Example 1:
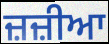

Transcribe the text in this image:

ਜ਼ਜ਼ੀਆ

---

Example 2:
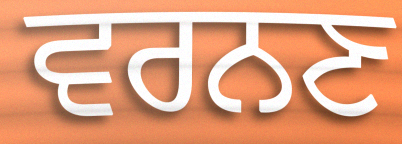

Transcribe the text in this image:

ਵਰਨਣ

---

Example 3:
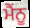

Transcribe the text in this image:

ਮੈਂਨੂ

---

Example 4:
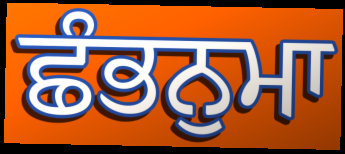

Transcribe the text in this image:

ਛੰਭਨੁਮਾ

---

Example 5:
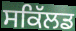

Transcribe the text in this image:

ਸਕਿੱਲਡ